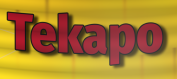
Tekapo